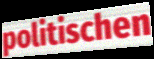
politischen